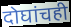
दोघांचही